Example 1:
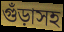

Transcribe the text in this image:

গুঁড়াসহ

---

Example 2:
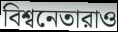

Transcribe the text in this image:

বিশ্বনেতারাও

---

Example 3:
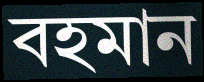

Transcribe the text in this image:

বহমান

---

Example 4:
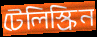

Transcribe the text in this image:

টেলিস্ক্রিন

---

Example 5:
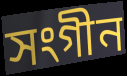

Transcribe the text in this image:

সংগীন